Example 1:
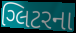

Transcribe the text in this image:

ગ્લિટરના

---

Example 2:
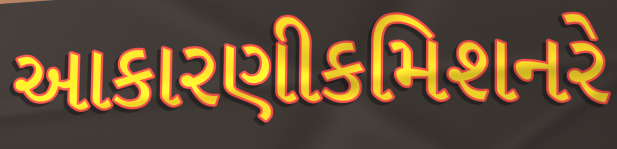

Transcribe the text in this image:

આકારણીકમિશનરે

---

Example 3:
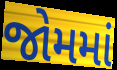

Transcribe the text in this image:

જોમમાં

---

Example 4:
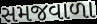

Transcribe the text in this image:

સમજવાળા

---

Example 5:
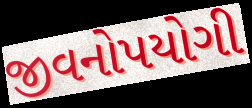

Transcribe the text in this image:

જીવનોપયોગી